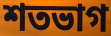
শতভাগ